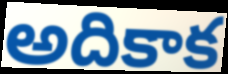
అదికాక